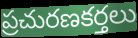
ప్రచురణకర్తలు